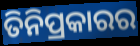
ତିନିପ୍ରକାରର